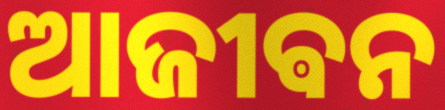
ଆଜୀଵନ